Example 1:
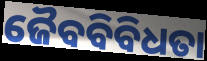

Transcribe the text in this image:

ଜୈବବିବିଧତା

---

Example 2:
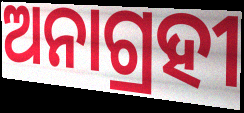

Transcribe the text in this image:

ଅନାଗ୍ରହୀ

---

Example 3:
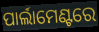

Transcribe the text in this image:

ପାର୍ଲାମେଣ୍ଟରେ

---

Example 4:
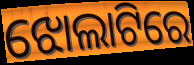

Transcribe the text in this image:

ଝୋଲାଟିରେ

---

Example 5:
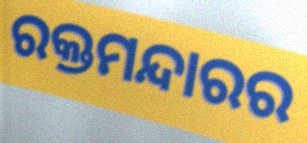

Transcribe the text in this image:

ରକ୍ତମନ୍ଦାରର